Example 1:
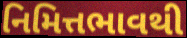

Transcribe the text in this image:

નિમિત્તભાવથી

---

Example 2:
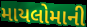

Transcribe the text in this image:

માયલોમાની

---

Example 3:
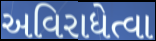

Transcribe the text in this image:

અવિરાધેત્વા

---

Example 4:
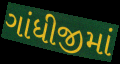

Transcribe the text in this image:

ગાંધીજીમાં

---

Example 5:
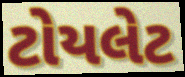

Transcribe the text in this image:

ટોયલેટ